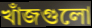
খাঁজগুলো